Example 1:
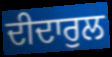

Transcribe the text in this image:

ਦੀਦਾਰੁਲ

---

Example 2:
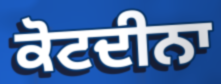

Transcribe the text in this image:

ਕੋਟਦੀਨਾ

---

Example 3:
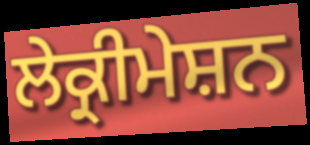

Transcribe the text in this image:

ਲੇਕ੍ਰੀਮੇਸ਼ਨ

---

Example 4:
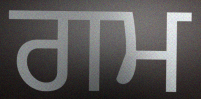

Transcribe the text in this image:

ਗਮ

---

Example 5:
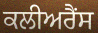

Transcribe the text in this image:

ਕਲੀਅਰੈਂਸ